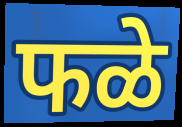
फळे